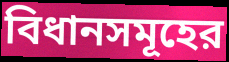
বিধানসমূহের